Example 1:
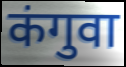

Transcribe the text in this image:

कंगुवा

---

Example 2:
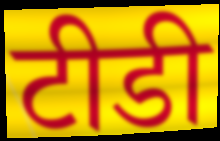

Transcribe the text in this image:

टीडी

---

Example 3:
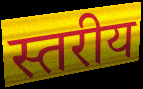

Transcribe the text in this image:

स्तरीय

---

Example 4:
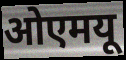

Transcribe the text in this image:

ओएमयू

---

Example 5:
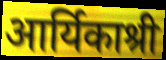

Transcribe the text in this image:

आर्यिकाश्री